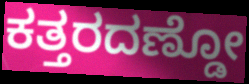
ಕತ್ತರದಣ್ಡೋ